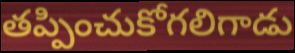
తప్పించుకోగలిగాడు